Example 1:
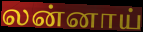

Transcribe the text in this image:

லன்னாய்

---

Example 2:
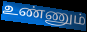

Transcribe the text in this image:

உண்ணும்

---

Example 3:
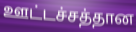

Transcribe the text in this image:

ஊட்டச்சத்தான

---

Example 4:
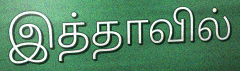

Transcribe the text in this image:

இத்தாவில்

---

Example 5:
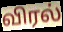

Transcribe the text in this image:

விரல்